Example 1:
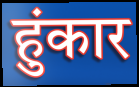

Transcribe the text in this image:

हुंकार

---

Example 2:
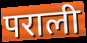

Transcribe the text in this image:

पराली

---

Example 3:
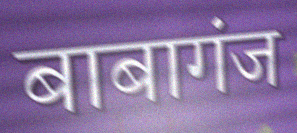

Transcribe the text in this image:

बाबागंज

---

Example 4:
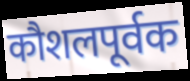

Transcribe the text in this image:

कौशलपूर्वक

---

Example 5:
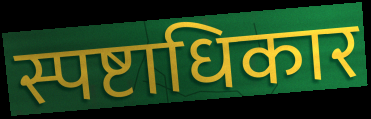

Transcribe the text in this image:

स्पष्टाधिकार